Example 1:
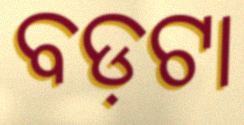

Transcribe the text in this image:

ବଡ଼ଟା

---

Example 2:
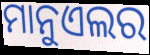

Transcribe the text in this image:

ମାନୁଏଲର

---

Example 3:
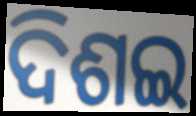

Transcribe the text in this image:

ଦିଶଇ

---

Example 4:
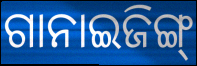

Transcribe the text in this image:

ଗାନାଇଜିଙ୍ଗ୍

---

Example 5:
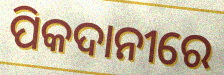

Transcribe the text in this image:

ପିକଦାନୀରେ